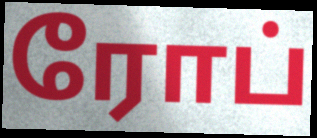
ரோப்